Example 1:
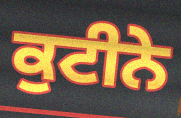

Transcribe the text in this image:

ਕੁਟੀਨੇ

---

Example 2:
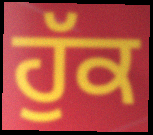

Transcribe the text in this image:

ਹੁੱਕ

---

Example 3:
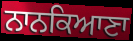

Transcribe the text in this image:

ਨਾਨਕਿਆਣਾ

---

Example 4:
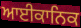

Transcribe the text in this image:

ਆਈਕਾਨਿਕ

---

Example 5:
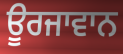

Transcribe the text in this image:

ਊਰਜਾਵਾਨ